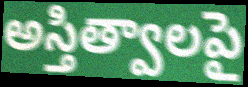
అస్తిత్వాలపై